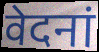
वेदनां